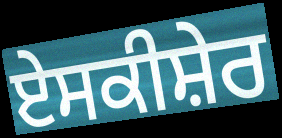
ਏਸਕੀਸ਼ੇਰ